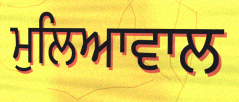
ਮੁਲਿਆਵਾਲ